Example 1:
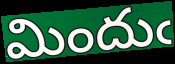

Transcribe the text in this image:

మిందుఁ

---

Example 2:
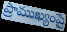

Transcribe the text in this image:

ప్రాముఖ్యంపై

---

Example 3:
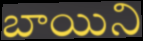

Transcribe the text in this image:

బాయిని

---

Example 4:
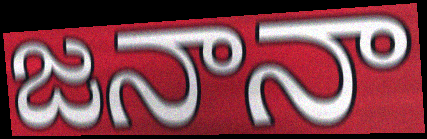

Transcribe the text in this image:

జనానా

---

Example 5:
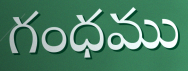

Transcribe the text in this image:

గంధము